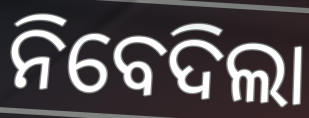
ନିବେଦିଲା